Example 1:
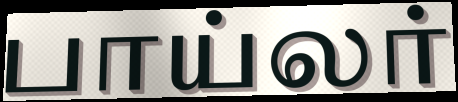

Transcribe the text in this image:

பாய்லர்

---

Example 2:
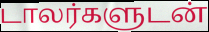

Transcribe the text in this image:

டாலர்களுடன்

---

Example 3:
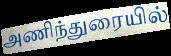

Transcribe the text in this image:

அணிந்துரையில்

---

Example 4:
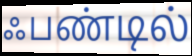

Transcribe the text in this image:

ஃபண்டில்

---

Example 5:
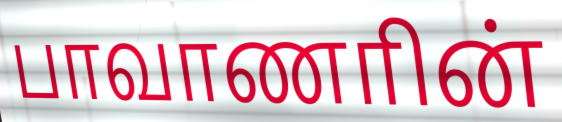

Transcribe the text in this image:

பாவாணரின்